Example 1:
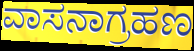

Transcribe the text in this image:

ವಾಸನಾಗ್ರಹಣ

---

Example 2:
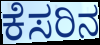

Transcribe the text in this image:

ಕೆಸರಿನ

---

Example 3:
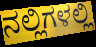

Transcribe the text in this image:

ನಲ್ಲಿಗಳಲ್ಲಿ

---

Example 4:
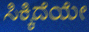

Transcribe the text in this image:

ಸಿಕ್ಕಿದೆಯೇ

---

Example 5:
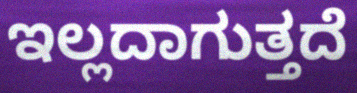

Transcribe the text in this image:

ಇಲ್ಲದಾಗುತ್ತದೆ